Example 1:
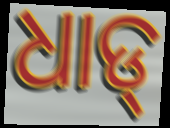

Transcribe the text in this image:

ଧାଡ୍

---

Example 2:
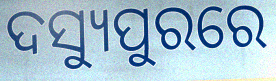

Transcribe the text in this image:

ଦସ୍ୟୁପୁରରେ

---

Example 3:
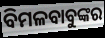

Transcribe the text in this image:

ବିମଳବାବୁଙ୍କର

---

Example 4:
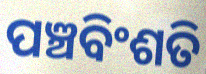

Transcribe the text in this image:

ପଞ୍ଚବିଂଶତି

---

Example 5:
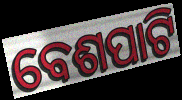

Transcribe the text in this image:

ବେଶପାଟି